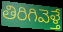
తిరిగివెళ్తే